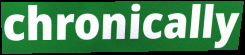
chronically